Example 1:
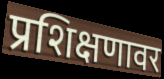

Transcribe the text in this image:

प्रशिक्षणावर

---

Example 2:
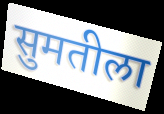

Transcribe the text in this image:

सुमतीला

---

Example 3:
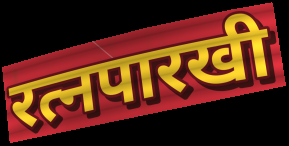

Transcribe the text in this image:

रत्नपारखी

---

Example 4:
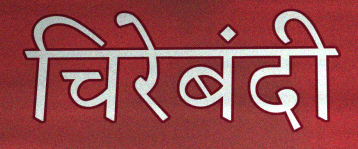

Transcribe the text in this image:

चिरेबंदी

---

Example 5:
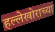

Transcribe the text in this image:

हल्लेखोराच्या